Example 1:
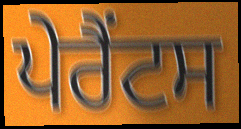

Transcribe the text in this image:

ਪੇਰੈਂਟਸ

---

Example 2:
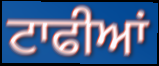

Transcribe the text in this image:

ਟਾਫੀਆਂ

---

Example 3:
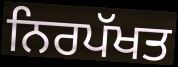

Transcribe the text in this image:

ਨਿਰਪੱਖਤ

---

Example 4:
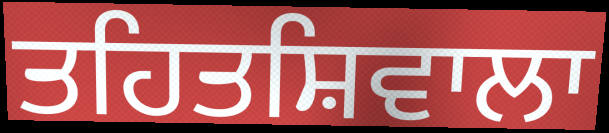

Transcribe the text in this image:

ਤਹਿਤਸ਼ਿਵਾਲਾ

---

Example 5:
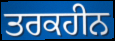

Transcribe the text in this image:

ਤਰਕਹੀਨ